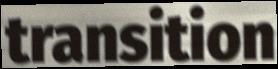
transition